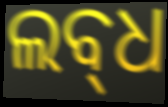
ଲବ୍‍ଧ